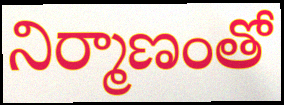
నిర్మాణంతో